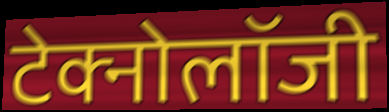
टेक्‍नोलॉजी